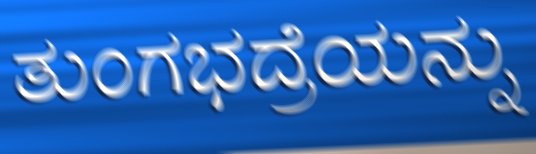
ತುಂಗಭದ್ರೆಯನ್ನು